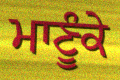
ਮਾਣੂੰਕੇ